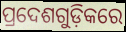
ପ୍ରଦେଶଗୁଡ଼ିକରେ